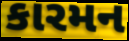
કારમન